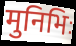
मुनिभिः